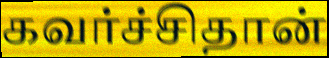
கவர்ச்சிதான்